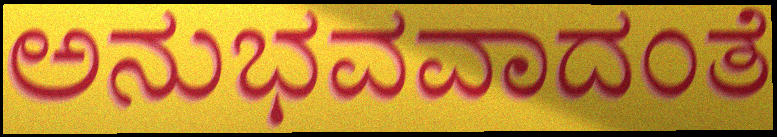
ಅನುಭವವಾದಂತೆ